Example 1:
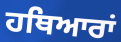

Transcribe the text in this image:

ਹਥਿਆਰਾਂ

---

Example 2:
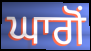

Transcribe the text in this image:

ਘਾਗੋਂ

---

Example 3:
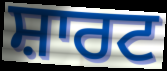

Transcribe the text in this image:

ਸ਼ਾਰਟ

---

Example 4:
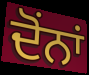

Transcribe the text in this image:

ਦੋਂਨਾਂ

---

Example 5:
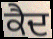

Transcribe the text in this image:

ਕੈਦ